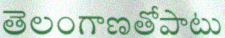
తెలంగాణతోపాటు